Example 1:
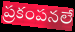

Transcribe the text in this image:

ప్రకంపనలే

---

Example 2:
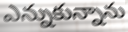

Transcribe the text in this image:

ఎన్నుకున్నాను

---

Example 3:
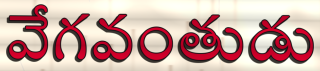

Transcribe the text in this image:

వేగవంతుడు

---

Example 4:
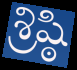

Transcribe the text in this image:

శ్రిష్ఠి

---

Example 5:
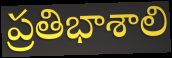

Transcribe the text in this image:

ప్రతిభాశాలి